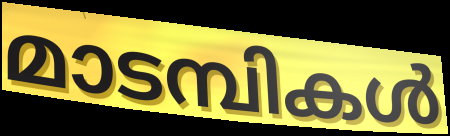
മാടമ്പികൾ